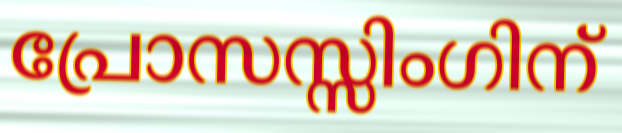
പ്രോസസ്സിംഗിന്